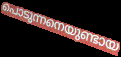
പൊടുന്നനെയുണ്ടായ